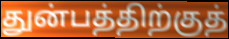
துன்பத்திற்குத்